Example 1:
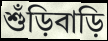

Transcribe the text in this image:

শুঁড়িবাড়ি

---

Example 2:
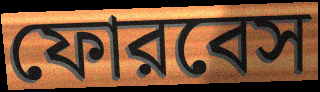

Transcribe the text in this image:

ফোরবেস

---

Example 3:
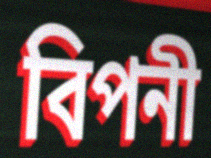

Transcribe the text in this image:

বিপনী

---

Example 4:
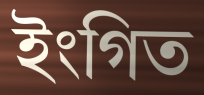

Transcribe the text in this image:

ইংগিত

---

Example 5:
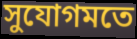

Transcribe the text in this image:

সুযোগমতে